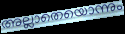
അല്ലാതെയൊന്നും